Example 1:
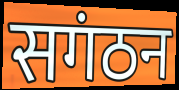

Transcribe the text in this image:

सगंठन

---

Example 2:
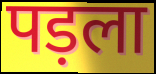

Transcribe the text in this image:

पड़ला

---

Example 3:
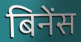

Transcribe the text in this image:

बिनेंस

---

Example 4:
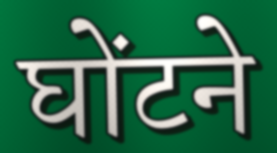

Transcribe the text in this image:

घोंटने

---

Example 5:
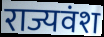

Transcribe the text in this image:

राज्यवंश